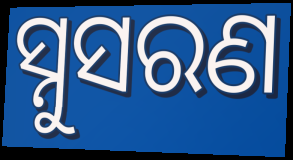
ସ୍ନୁସରଣ